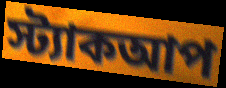
স্ট্যাকআপ